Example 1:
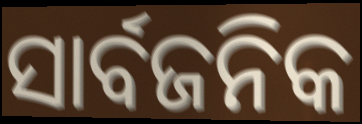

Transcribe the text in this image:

ସାର୍ବଜନିକ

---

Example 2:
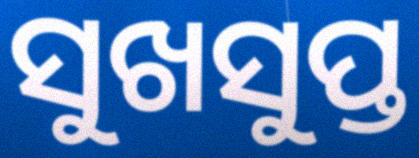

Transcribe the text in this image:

ସୁଖସୁପ୍ତ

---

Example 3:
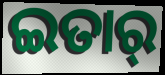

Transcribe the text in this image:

ଇତାର୍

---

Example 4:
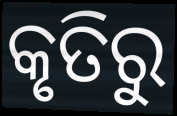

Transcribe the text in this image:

କୃତିରୁ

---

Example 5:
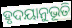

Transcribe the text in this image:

ହୃଦୟାନୁଭୂତି